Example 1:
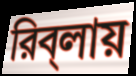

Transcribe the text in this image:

রিব্‌লায়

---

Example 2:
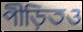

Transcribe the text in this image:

পীড়িতও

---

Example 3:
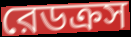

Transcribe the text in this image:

রেডক্রস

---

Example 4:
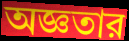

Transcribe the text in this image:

অজ্ঞতার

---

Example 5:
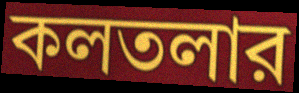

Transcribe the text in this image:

কলতলার